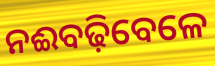
ନଈବଢ଼ିବେଳେ